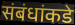
संबंधांकडे